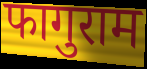
फागुराम